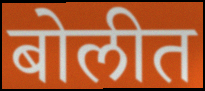
बोलीत